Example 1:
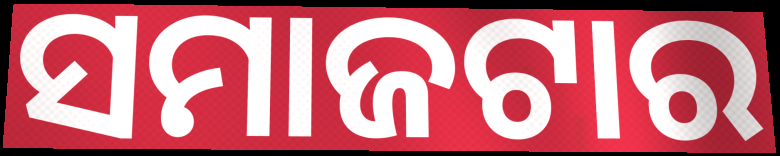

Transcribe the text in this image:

ସମାଜଟାର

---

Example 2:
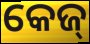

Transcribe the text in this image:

କେଜ୍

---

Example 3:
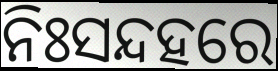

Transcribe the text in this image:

ନିଃସନ୍ଦହରେ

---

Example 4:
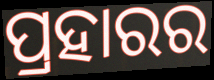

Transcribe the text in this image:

ପ୍ରହାରର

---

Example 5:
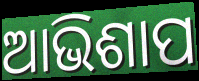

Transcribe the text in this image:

ଆଭିଶାପ